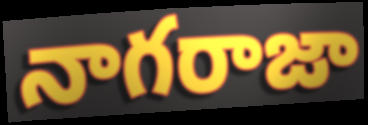
నాగరాజా